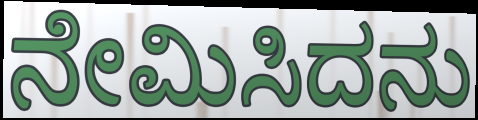
ನೇಮಿಸಿದನು